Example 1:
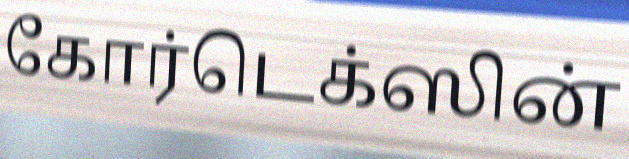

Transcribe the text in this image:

கோர்டெக்ஸின்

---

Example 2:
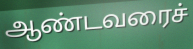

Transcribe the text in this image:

ஆண்டவரைச்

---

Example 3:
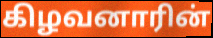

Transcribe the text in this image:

கிழவனாரின்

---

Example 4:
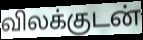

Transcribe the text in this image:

விலக்குடன்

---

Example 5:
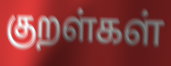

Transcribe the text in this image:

குறள்கள்